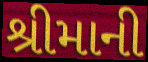
શ્રીમાની